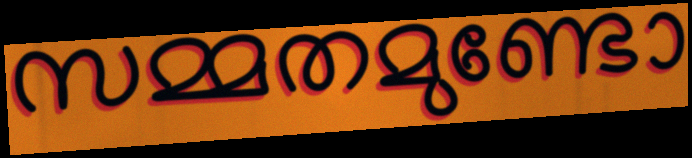
സമ്മതമുണ്ടോ